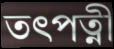
তৎপত্নী